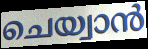
ചെയ്വാൻ